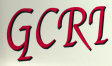
GCRI